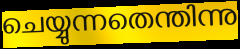
ചെയ്യുന്നതെന്തിന്നു